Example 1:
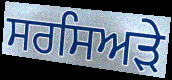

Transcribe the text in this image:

ਸਰਸਿਅੜੇ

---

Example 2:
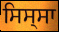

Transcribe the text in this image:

ਸਿਸ੍ਸਾ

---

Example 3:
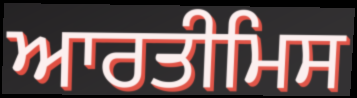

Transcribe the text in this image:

ਆਰਤੀਮਿਸ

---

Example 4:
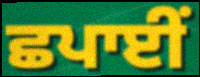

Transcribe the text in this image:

ਛਪਾਈਂ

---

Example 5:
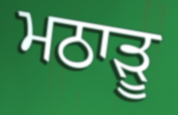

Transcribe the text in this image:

ਮਠਾੜੂ